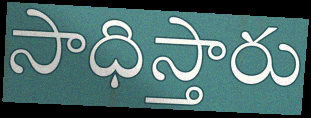
సాధిస్తారు